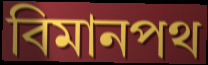
বিমানপথ